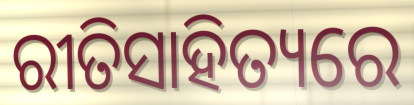
ରୀତିସାହିତ୍ୟରେ